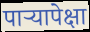
पाऱ्यापेक्षा